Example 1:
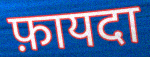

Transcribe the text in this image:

फ़ायदा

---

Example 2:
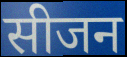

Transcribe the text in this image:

सीजन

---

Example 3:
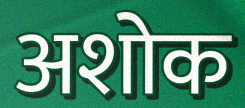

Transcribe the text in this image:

अशोक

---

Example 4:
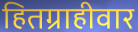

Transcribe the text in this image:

हितग्राहीवार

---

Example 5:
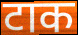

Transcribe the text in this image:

टाक